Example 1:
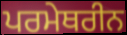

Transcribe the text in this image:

ਪਰਮੇਥਰੀਨ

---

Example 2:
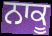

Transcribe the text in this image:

ਨਾਕੂ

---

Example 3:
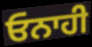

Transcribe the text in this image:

ਓਨਾਹੀ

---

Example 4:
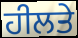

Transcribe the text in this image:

ਹੀਲਤੇ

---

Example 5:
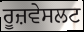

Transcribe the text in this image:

ਰੂਜ਼ਵੇਸਲਟ